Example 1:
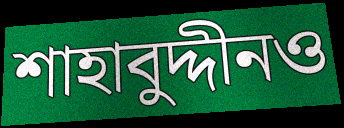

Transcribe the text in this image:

শাহাবুদ্দীনও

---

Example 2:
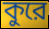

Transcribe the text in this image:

কুরে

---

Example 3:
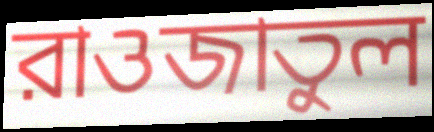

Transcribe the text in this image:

রাওজাতুল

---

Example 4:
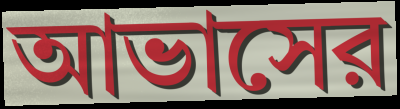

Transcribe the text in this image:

আভাসের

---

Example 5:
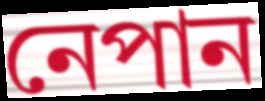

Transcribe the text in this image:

নেপান